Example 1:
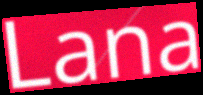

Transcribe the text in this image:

Lana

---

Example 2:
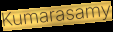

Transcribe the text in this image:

Kumarasamy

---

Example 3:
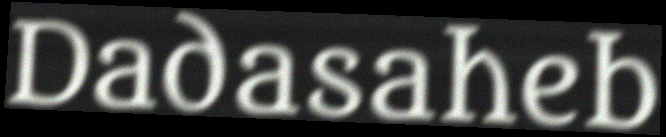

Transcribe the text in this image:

Dadasaheb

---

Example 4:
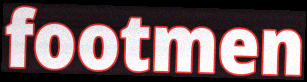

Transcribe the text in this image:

footmen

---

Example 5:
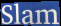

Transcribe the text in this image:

Slam